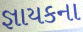
જ્ઞાયકના